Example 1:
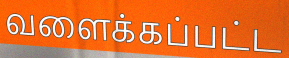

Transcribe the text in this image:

வளைக்கப்பட்ட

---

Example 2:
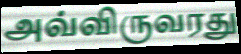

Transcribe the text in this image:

அவ்விருவரது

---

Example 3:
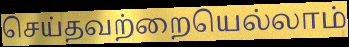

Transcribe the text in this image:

செய்தவற்றையெல்லாம்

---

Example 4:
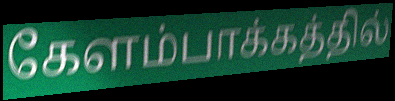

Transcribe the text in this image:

கேளம்பாக்கத்தில்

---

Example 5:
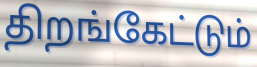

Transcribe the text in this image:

திறங்கேட்டும்